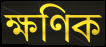
ক্ষণিক